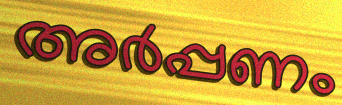
അർപ്പണം